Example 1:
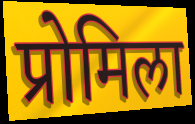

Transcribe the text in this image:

प्रोमिला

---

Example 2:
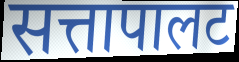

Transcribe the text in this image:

सत्तापालट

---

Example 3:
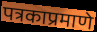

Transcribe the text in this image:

पत्रकाप्रमाणे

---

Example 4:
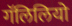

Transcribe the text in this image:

गॅलिलियो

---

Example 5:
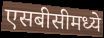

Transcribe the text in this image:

एसबीसीमध्ये